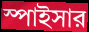
স্পাইসার